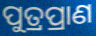
ପୁତ୍ରପ୍ରାଣ